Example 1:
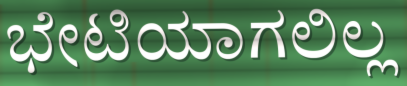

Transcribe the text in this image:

ಭೇಟಿಯಾಗಲಿಲ್ಲ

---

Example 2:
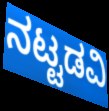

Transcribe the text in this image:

ನಟ್ಟಡವಿ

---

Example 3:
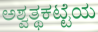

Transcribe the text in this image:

ಅಶ್ವತ್ಥಕಟ್ಟೆಯ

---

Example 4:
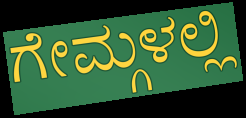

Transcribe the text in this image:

ಗೇಮ್ಗಳಲ್ಲಿ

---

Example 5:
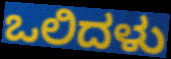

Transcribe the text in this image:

ಒಲಿದಳು